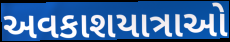
અવકાશયાત્રાઓ